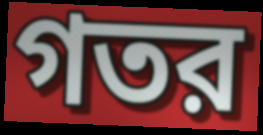
গতর